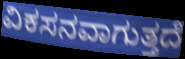
ವಿಕಸನವಾಗುತ್ತದೆ